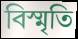
বিস্মৃতি